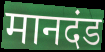
मानदंड